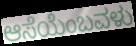
ಆಸೆಯೆಂಬವಳು